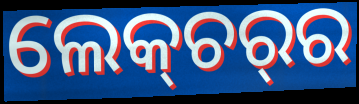
ଲେକ୍‌ଚର୍‌ର